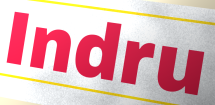
Indru